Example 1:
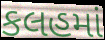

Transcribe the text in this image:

કલહમાં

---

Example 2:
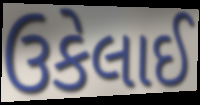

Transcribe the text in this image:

ઉકેલાઈ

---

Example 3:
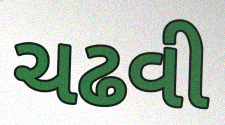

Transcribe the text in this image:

ચઢવી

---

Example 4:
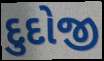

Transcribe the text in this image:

દુદોજી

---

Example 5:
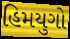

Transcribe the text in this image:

હિમયુગો